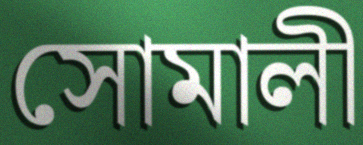
সোমালী